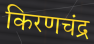
किरणचंद्र